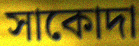
সাকোদা